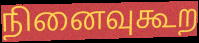
நினைவுகூற